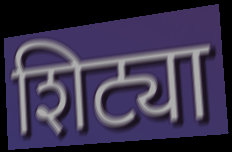
शिट्या